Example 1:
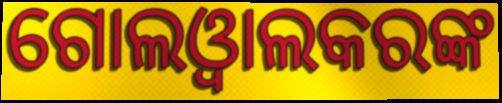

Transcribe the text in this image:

ଗୋଲଓ୍ଵାଲକରଙ୍କ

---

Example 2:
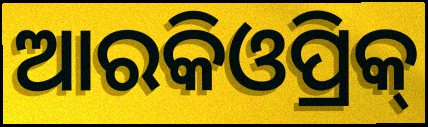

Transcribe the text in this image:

ଆରକିଓପ୍ରିକ୍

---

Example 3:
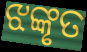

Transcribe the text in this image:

ଝଙ୍କୃତ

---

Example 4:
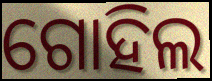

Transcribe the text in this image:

ଗୋହିଲ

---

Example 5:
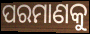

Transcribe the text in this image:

ପରମାଣକୁ